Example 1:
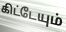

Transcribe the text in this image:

கிட்டேயும்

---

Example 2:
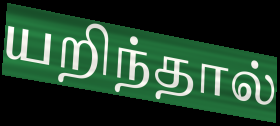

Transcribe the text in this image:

யறிந்தால்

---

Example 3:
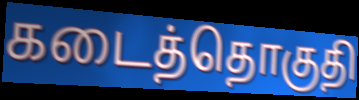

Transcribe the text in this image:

கடைத்தொகுதி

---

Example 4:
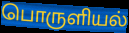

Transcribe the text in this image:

பொருளியல்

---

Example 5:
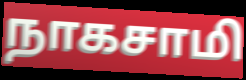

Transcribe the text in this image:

நாகசாமி